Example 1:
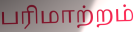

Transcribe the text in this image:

பரிமாற்றம்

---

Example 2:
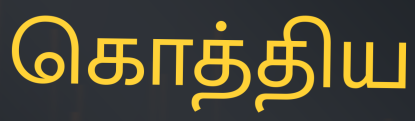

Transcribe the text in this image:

கொத்திய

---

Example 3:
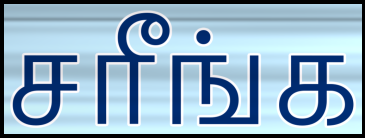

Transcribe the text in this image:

சரீங்க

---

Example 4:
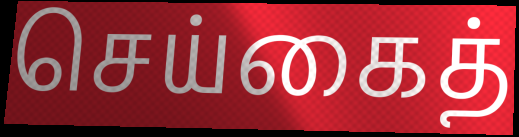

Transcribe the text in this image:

செய்கைத்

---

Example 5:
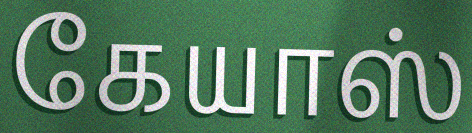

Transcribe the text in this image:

கேயாஸ்